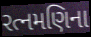
રત્નમણિના